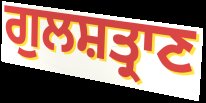
ਗੁਲਸ਼ਤ੍ਰਾਣ